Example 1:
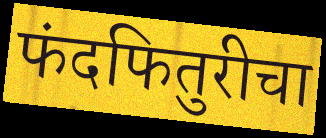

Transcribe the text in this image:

फंदफितुरीचा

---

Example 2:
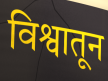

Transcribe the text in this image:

विश्वातून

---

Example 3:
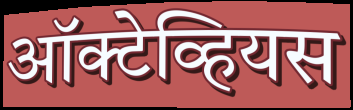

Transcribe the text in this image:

ऑक्टेव्हियस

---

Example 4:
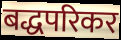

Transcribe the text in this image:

बद्धपरिकर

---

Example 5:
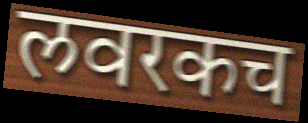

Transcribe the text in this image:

लवरकच